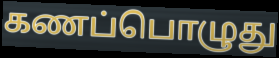
கணப்பொழுது